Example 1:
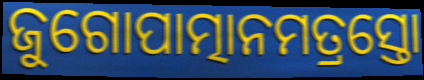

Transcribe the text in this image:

ଜୁଗୋପାତ୍ମାନମତ୍ରସ୍ତୋ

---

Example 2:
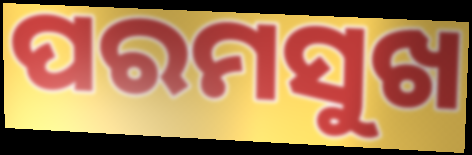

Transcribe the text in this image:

ପରମସୁଖ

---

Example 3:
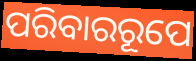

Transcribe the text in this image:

ପରିବାରରୂପେ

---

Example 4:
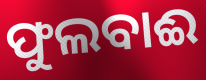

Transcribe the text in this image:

ଫୁଲବାଈ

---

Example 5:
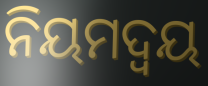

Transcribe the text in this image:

ନିୟମଦ୍ୱୟ